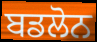
ਬਡਲੋਨ